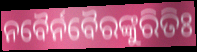
ନବୈର୍ନବୈରଙ୍କୁରିତିଃ